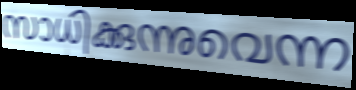
സാധിക്കുന്നുവെന്ന